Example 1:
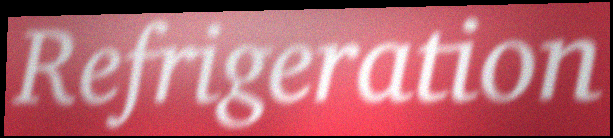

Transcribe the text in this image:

Refrigeration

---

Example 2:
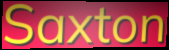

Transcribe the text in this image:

Saxton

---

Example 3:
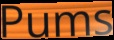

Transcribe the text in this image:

Pums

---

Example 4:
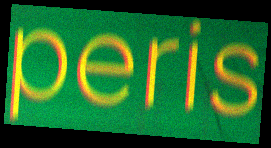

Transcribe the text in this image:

peris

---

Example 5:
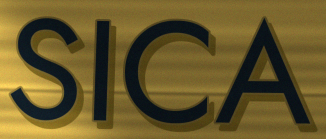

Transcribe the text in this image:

SICA